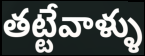
తట్టేవాళ్ళు